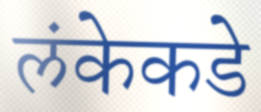
लंकेकडे